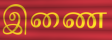
இணை